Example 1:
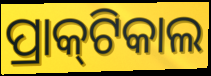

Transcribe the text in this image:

ପ୍ରାକ୍‌ଟିକାଲ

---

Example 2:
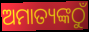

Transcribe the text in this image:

ଅମାତ୍ୟଙ୍କଠୁଁ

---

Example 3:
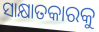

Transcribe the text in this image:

ସାକ୍ଷାତକାରକୁ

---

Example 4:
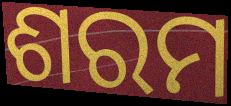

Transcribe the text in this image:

ଶରମ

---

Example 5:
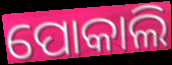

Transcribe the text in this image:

ପୋକାଲି